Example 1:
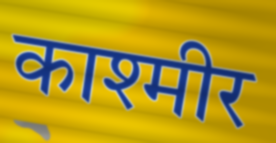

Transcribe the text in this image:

काश्मीर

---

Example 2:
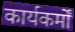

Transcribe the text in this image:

कार्यकर्मों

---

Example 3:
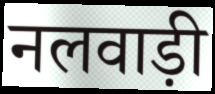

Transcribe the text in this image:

नलवाड़ी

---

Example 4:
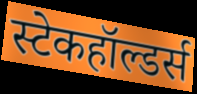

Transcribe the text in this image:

स्टेकहॉल्डर्स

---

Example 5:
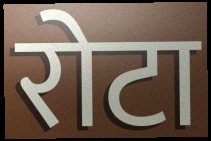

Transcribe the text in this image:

रोटा